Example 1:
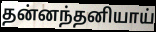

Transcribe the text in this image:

தன்னந்தனியாய்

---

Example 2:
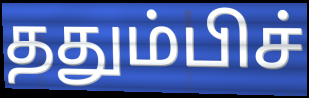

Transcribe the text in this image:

ததும்பிச்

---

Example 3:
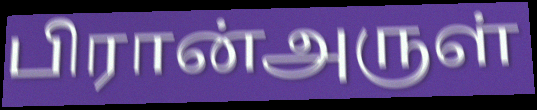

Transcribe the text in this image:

பிரான்அருள்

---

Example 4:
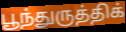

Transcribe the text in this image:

பூந்துருத்திக்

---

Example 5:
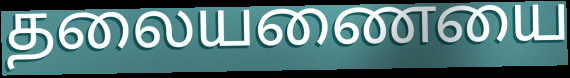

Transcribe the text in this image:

தலையணையை